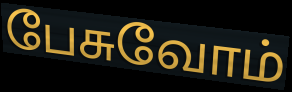
பேசுவோம்